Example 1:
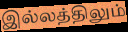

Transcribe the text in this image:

இல்லத்திலும்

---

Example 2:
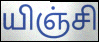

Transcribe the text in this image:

யிஞ்சி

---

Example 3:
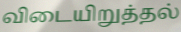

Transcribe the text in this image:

விடையிறுத்தல்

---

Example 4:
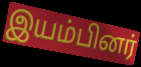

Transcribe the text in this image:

இயம்பினர்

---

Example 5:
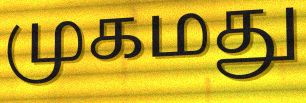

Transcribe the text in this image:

முகமது